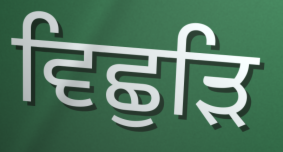
ਵਿਛੁੜਿ